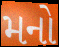
મનો